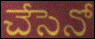
చేసెనో